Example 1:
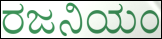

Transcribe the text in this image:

ರಜನಿಯಂ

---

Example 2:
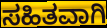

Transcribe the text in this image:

ಸಹಿತವಾಗಿ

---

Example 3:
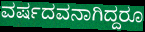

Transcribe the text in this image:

ವರ್ಷದವನಾಗಿದ್ದರೂ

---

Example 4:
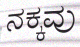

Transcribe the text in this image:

ನಕ್ಕವು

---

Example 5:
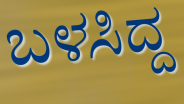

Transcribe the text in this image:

ಬಳಸಿದ್ದ